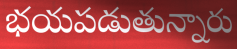
భయపడుతున్నారు